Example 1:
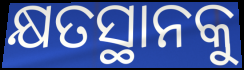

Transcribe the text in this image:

କ୍ଷତସ୍ଥାନକୁ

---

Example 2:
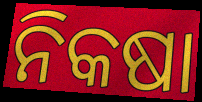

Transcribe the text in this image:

ନିକଷା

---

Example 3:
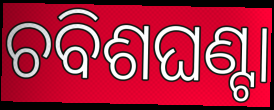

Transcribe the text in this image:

ଚବିଶଘଣ୍ଟା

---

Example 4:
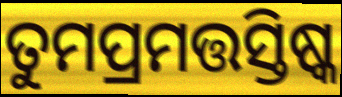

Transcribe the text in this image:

ତୁମପ୍ରମତ୍ତସ୍ତିଷ୍କ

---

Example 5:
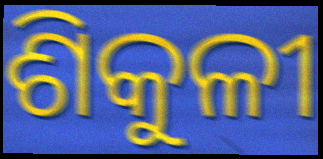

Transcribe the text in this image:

ଶିକୁଳୀ